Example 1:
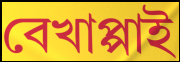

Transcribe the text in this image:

বেখাপ্পাই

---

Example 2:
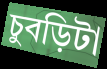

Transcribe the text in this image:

চুবড়িটা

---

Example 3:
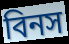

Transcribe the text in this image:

বিনস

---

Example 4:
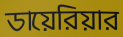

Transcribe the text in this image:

ডায়েরিয়ার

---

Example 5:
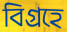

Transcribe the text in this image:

বিগ্রহে